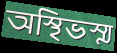
অস্থিভস্ম